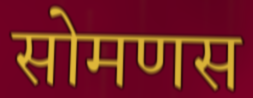
सोमणस